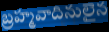
బ్రహ్మవాదినులైన